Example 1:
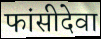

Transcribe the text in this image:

फांसीदेवा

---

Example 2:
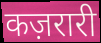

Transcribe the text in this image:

कज़रारी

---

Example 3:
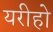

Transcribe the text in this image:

यरीहो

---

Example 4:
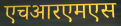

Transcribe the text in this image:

एचआरएमएस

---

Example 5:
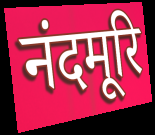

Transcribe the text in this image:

नंदमूरि